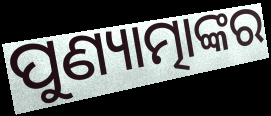
ପୁଣ୍ୟାତ୍ମାଙ୍କର